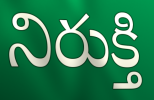
నిరుక్తి